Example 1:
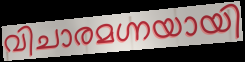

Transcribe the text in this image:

വിചാരമഗ്നയായി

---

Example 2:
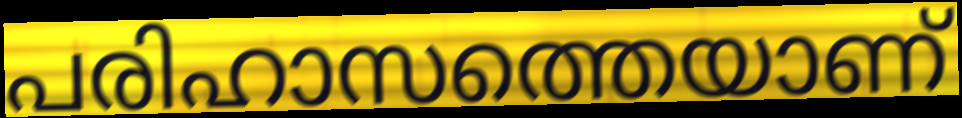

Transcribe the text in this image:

പരിഹാസത്തെയാണ്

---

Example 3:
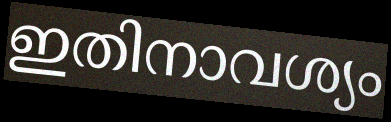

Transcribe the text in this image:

ഇതിനാവശ്യം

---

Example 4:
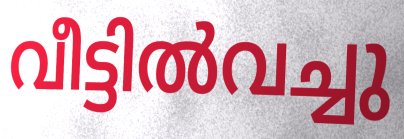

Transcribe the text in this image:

വീട്ടിൽവച്ചു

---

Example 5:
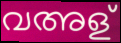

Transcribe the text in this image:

വഅള്